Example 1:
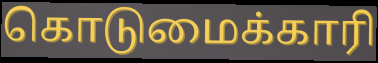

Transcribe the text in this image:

கொடுமைக்காரி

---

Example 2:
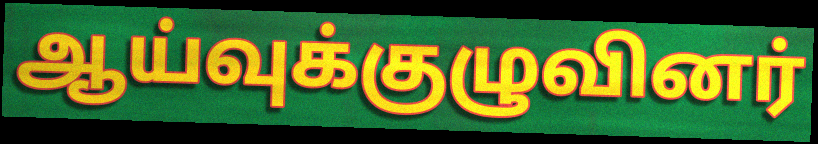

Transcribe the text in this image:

ஆய்வுக்குழுவினர்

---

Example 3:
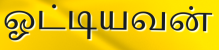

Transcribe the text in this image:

ஓட்டியவன்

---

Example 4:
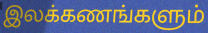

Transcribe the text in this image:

இலக்கணங்களும்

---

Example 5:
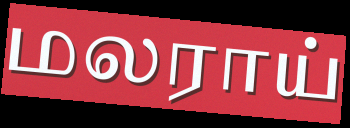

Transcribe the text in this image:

மலராய்